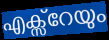
എക്സ്റേയും